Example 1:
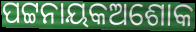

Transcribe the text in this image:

ପଟ୍ଟନାୟକଅଶୋକ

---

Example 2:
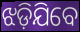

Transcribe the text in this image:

ଝଡ଼ିଯିବେ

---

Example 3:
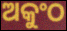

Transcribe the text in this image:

ଅକୁଂଠ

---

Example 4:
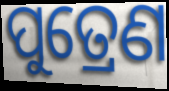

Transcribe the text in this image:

ପୁତ୍ରେଣ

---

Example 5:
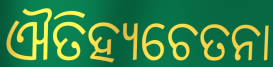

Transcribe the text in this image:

ଐତିହ୍ୟଚେତନା